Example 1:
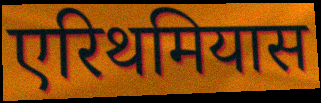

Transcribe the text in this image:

एरिथमियास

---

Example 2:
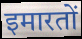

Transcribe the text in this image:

इमारतों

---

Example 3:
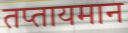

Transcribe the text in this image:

तप्तायमान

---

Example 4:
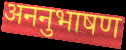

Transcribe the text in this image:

अननुभाषण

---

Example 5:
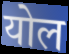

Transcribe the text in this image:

योल